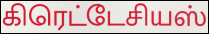
கிரெட்டேசியஸ்